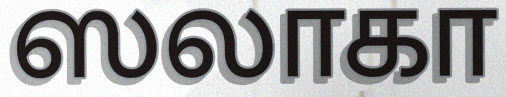
ஸலாகா